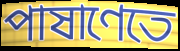
পাষাণেতে